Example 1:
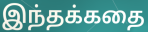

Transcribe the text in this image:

இந்தக்கதை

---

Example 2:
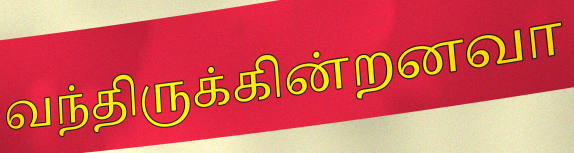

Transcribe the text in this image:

வந்திருக்கின்றனவா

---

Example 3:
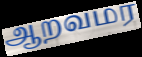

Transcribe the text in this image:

ஆறவமர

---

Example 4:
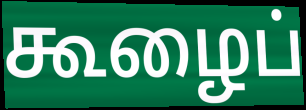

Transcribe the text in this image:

கூழைப்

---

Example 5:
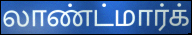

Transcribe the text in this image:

லாண்ட்மார்க்